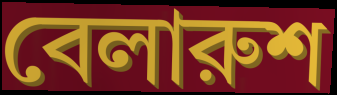
বেলারুশ